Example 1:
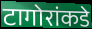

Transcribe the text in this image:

टागोरांकडे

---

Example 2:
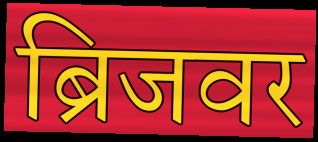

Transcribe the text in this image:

ब्रिजवर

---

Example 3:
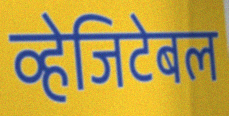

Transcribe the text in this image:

व्हेजिटेबल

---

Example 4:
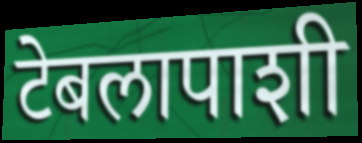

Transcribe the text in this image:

टेबलापाशी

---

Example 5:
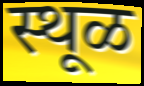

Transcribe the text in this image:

स्थूळ